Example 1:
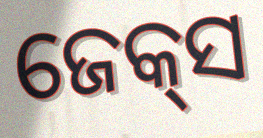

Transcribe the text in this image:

ଜେକ୍‍ସ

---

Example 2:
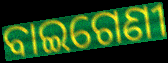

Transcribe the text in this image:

ବାଇଗେଣୀ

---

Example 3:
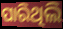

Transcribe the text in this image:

ପାରିଥିଲି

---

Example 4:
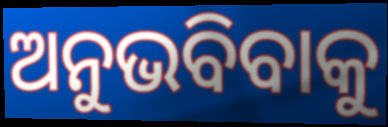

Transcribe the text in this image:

ଅନୁଭବିବାକୁ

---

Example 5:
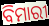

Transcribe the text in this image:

ବିମାରୀ